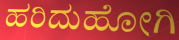
ಹರಿದುಹೋಗಿ